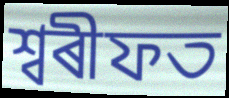
শ্বৰীফত